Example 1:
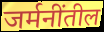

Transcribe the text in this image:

जर्मनींतील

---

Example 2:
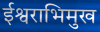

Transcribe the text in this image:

ईश्वराभिमुख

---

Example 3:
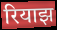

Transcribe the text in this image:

रियाझ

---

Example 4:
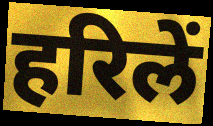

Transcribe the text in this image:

हरिलें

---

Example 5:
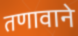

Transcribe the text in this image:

तणावाने